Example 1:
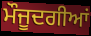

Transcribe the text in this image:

ਮੌਜੂਦਗੀਆਂ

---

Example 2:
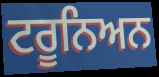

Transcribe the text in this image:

ਟਰੂਨਿਅਨ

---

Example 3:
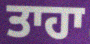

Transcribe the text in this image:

ਤਾਹਾ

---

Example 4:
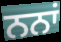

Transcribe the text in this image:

ਨਨਾਂ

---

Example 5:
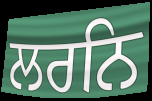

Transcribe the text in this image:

ਲਰਨਿ